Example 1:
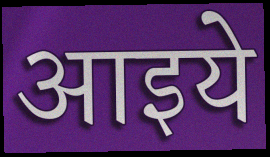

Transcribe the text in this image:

आइये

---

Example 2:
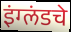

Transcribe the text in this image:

इंग्लंडचे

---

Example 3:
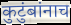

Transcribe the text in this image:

कुटुंबांनाच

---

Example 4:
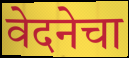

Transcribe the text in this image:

वेदनेचा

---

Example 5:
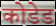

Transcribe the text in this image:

कोडेड